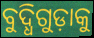
ବୁଦ୍ଧିଗୁଡ଼ାକୁ